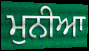
ਮੁਨੀਆ